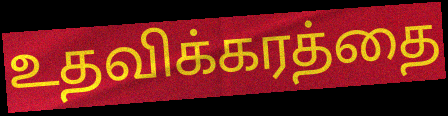
உதவிக்கரத்தை